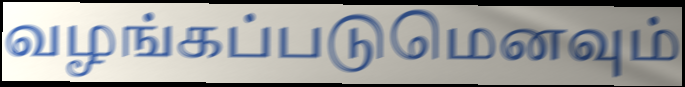
வழங்கப்படுமெனவும்